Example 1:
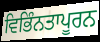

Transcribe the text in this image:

ਵਿਭਿੰਨਤਾਪੂਰਨ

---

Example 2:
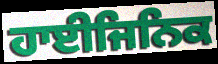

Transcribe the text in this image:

ਹਾਈਜਿਨਿਕ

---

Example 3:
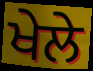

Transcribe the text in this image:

ਖੇਲੇ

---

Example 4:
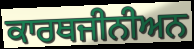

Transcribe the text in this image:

ਕਾਰਥਜੀਨੀਅਨ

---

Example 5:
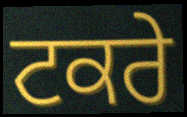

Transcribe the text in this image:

ਟਕਰੇ